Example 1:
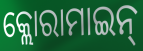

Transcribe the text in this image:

କ୍ଲୋରାମାଇନ୍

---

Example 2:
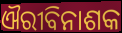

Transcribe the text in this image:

ଐରୀବିନାଶକ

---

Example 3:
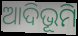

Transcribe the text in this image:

ଆଦିଭୂମି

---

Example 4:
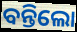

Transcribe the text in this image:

ବନ୍ତିଲୋ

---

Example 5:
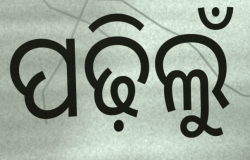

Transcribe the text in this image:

ପଢ଼ିଲୁଁ